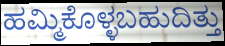
ಹಮ್ಮಿಕೊಳ್ಳಬಹುದಿತ್ತು